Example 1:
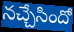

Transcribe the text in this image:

నచ్చేసిందో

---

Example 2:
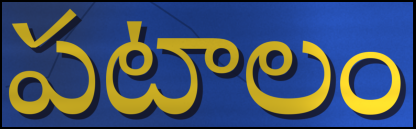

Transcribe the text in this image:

పటాలం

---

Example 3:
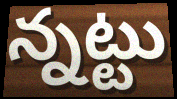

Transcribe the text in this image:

న్నట్టు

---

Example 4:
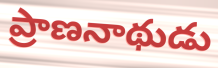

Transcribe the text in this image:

ప్రాణనాథుడు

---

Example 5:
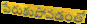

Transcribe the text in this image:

పేరుకుపోవడంతో